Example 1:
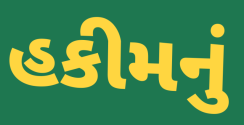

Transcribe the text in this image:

હકીમનું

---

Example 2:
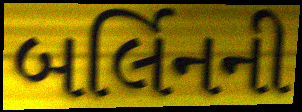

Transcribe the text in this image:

બર્લિનની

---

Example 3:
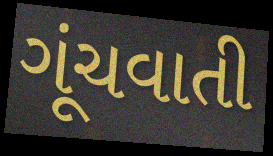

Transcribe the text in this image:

ગૂંચવાતી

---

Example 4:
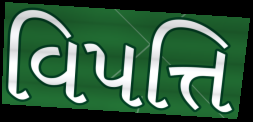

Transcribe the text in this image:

વિપત્તિ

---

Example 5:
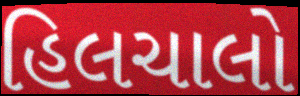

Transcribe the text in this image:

હિલચાલો